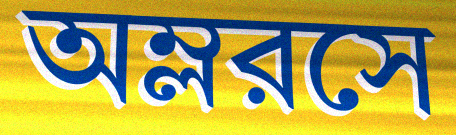
অম্লরসে